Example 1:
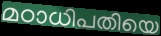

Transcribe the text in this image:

മഠാധിപതിയെ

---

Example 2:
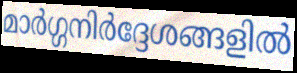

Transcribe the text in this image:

മാർഗ്ഗനിർദ്ദേശങ്ങളിൽ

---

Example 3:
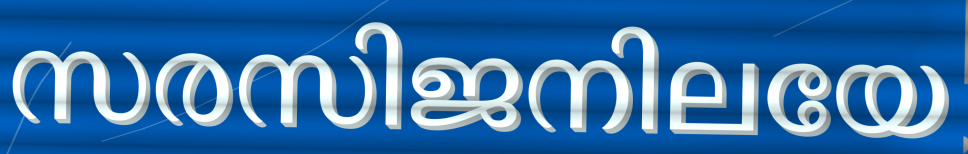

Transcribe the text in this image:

സരസിജനിലയേ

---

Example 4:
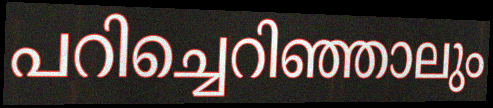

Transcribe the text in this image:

പറിച്ചെറിഞ്ഞാലും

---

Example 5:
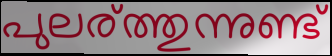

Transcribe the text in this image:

പുലര്ത്തുന്നുണ്ട്